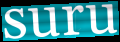
suru